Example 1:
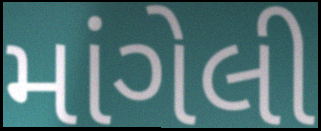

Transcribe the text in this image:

માંગેલી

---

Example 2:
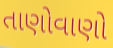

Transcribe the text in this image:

તાણોવાણો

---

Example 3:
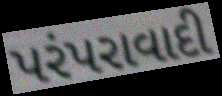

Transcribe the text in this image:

પરંપરાવાદી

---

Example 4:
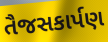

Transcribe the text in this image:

તૈજસકાર્પણ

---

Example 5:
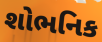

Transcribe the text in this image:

શોભનિક